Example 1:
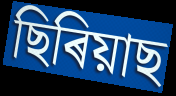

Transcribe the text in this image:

ছিৰিয়াছ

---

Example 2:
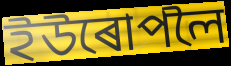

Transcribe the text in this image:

ইউৰোপলৈ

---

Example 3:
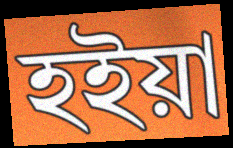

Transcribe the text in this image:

হইয়া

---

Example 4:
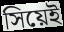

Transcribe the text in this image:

সিয়েই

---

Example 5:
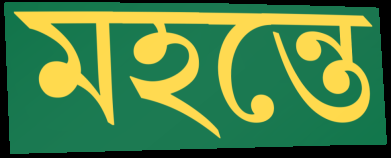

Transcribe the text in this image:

মহন্তে